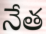
నేత